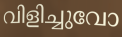
വിളിച്ചുവോ